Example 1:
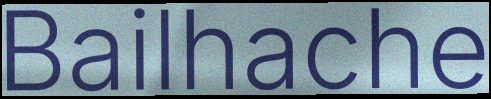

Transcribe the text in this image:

Bailhache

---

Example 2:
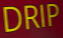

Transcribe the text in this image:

DRIP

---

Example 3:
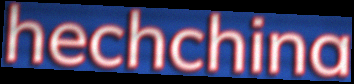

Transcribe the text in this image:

hechchina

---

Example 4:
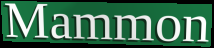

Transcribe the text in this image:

Mammon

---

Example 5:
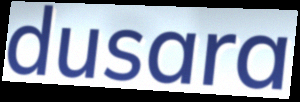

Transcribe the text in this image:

dusara